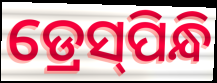
ଡ୍ରେସ୍‌ପିନ୍ଧି